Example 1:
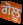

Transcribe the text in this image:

ਗੋਲੂ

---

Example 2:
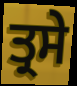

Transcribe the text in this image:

ਤ੍ਰਸੇ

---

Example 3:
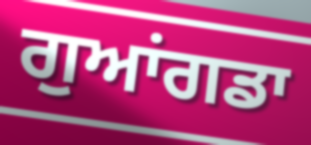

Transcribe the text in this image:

ਗੁਆਂਗਡਾ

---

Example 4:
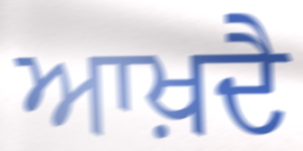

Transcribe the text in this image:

ਆਖ਼ਦੈ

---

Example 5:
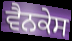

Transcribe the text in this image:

ਵੈਨਕੇਸ